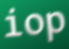
iop